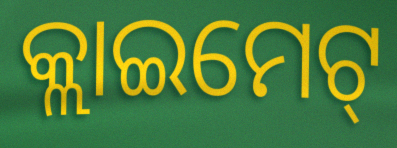
କ୍ଲାଇମେଟ୍